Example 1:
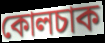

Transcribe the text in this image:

কোলচাক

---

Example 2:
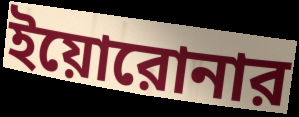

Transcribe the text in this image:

ইয়োরোনার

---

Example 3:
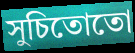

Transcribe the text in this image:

সুচিতোতো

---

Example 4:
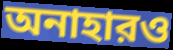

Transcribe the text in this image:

অনাহারও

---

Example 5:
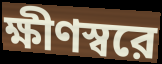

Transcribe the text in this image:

ক্ষীণস্বরে